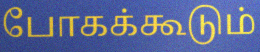
போகக்கூடும்